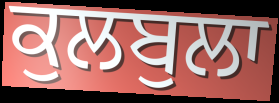
ਕੁਲਬੁਲਾ